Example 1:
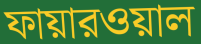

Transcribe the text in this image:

ফায়ারওয়াল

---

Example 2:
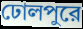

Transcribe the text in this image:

ঢোলপুরে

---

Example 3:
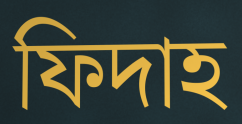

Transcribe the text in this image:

ফিদাহ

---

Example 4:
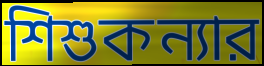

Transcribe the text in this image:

শিশুকন্যার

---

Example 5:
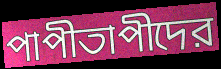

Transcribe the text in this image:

পাপীতাপীদের